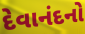
દેવાનંદનો